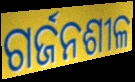
ଗର୍ଜନଶୀଳ